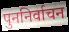
पुननिर्वाचन